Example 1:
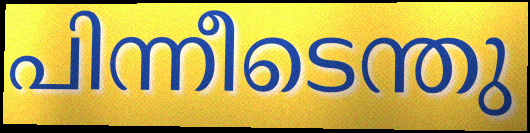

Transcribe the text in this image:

പിന്നീടെന്തു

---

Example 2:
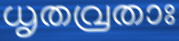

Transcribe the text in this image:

ധൃതവ്രതാഃ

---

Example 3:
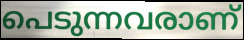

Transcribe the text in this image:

പെടുന്നവരാണ്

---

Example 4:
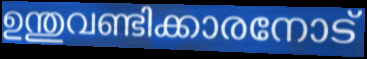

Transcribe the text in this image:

ഉന്തുവണ്ടിക്കാരനോട്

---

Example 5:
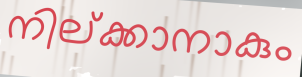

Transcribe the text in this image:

നില്ക്കാനാകും